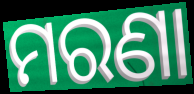
ମରଣା